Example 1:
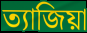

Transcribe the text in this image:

ত্যাজিয়া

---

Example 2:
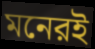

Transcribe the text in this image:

মনেরই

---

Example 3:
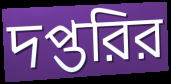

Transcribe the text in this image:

দপ্তরির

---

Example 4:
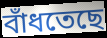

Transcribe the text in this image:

বাঁধতেছে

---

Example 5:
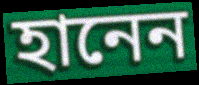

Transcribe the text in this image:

হানেন